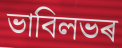
ভাবিলভৰ